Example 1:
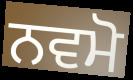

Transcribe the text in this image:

ਨਵਮੋ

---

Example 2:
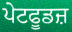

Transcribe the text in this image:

ਪੇਟਫੂਡਜ਼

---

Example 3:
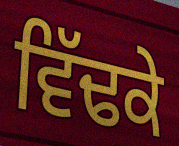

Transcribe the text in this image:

ਵਿੱਢਕੇ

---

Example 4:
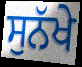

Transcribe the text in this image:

ਸੁਨੱਖੇ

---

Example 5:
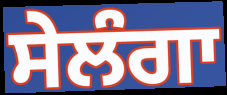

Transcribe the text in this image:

ਸੇਲੰਗਾ